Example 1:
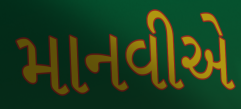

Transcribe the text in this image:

માનવીએ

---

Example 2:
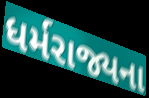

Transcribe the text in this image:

ધર્મરાજ્યના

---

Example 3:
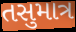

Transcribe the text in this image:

તસુમાત્ર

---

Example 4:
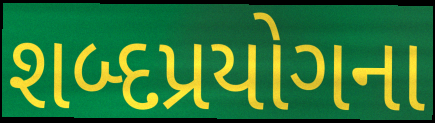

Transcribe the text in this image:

શબ્દપ્રયોગના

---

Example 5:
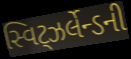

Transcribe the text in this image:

સ્વિટ્ઝર્લેન્ડની